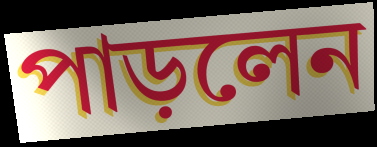
পাড়লেন